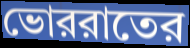
ভোররাতের